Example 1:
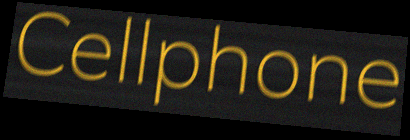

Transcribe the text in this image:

Cellphone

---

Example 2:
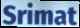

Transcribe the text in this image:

Srimat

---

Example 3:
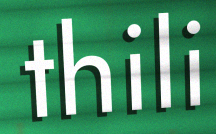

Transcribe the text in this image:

thili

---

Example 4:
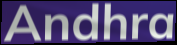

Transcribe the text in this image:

Andhra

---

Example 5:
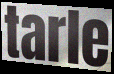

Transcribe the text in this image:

tarle